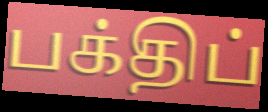
பக்திப்